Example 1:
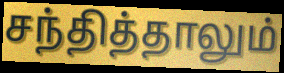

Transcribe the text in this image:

சந்தித்தாலும்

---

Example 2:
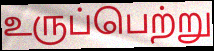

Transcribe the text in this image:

உருப்பெற்று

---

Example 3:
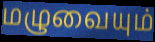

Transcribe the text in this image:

மழுவையும்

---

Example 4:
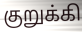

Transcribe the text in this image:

குறுக்கி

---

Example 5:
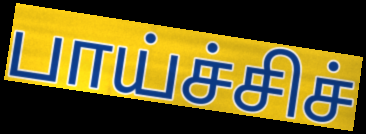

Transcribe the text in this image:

பாய்ச்சிச்